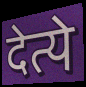
देत्ये